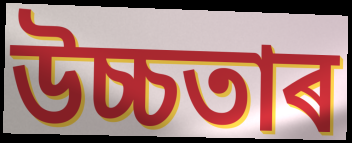
উচ্চতাৰ